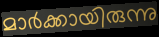
മാർക്കായിരുന്നു